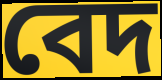
বেদ